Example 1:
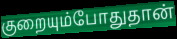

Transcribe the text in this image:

குறையும்போதுதான்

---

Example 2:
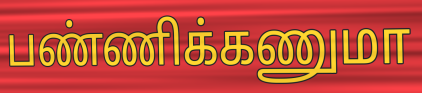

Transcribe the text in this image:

பண்ணிக்கணுமா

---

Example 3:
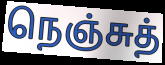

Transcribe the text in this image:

நெஞ்சுத்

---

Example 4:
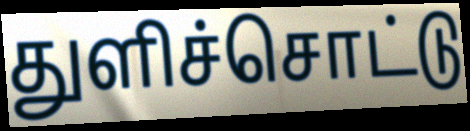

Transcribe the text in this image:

துளிச்சொட்டு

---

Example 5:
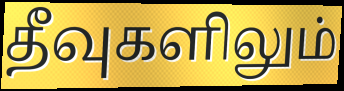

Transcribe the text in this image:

தீவுகளிலும்